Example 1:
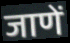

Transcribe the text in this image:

जाणें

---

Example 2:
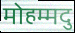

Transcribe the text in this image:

मोहम्मदु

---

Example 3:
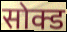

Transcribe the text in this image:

सोक्ड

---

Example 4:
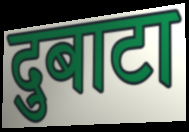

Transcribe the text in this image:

दुबाटा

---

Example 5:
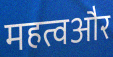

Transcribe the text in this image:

महत्वऔर